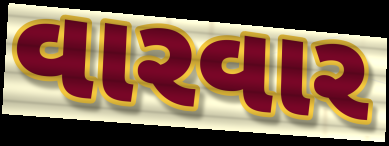
વારવાર